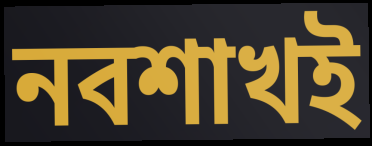
নবশাখই